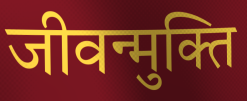
जीवन्मुक्ति